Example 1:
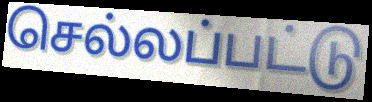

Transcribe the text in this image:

செல்லப்பட்டு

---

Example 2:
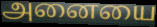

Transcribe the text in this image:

அனையை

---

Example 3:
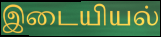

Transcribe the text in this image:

இடையியல்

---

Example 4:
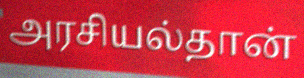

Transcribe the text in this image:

அரசியல்தான்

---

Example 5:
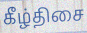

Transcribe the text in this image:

கீழ்திசை